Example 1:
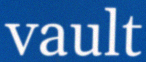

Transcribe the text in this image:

vault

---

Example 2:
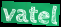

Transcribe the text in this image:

vatel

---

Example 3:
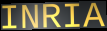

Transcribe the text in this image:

INRIA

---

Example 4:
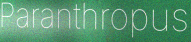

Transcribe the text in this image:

Paranthropus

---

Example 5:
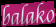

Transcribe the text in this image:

balako